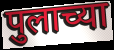
पुलाच्या